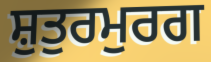
ਸ਼ੁਤੁਰਮੁਰਗ